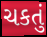
ચકતું